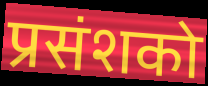
प्रसंशको